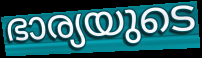
ഭാര്യയുടെ